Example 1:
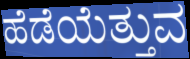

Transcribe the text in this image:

ಹೆಡೆಯೆತ್ತುವ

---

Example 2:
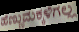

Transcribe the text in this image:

ಹೆಣ್ಣುಮಕ್ಕಳಿಗಲ್ಲ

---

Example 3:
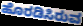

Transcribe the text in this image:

ಹೊರಡಿಸಿರುವ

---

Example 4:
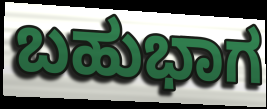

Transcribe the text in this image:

ಬಹುಭಾಗ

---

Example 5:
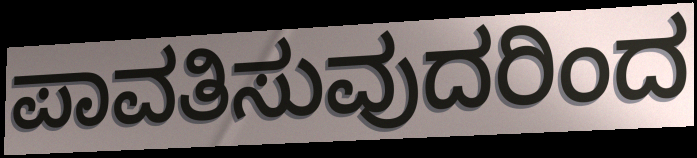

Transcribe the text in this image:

ಪಾವತಿಸುವುದರಿಂದ